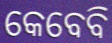
କେବେବି